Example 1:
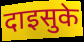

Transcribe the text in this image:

दाइसुके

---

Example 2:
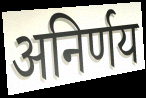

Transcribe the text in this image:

अनिर्णय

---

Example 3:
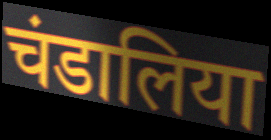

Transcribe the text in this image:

चंडालिया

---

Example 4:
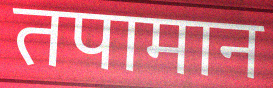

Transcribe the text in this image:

तपामान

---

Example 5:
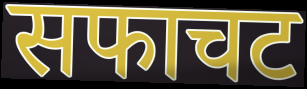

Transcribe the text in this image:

सफाचट